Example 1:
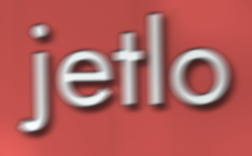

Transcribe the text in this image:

jetlo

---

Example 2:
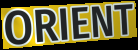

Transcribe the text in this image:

ORIENT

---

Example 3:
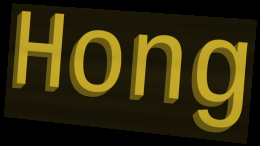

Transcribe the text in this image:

Hong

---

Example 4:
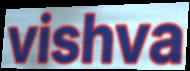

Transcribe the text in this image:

vishva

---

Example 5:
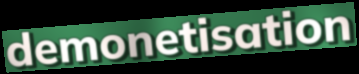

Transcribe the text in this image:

demonetisation